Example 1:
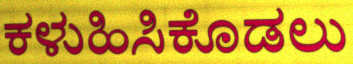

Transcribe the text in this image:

ಕಳುಹಿಸಿಕೊಡಲು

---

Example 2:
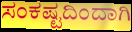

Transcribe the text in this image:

ಸಂಕಷ್ಟದಿಂದಾಗಿ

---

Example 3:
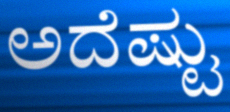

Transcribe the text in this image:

ಅದೆಷ್ಟು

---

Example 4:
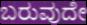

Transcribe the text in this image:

ಬರುವುದೇ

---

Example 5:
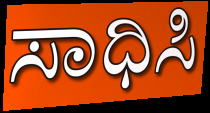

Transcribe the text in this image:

ಸಾಧಿಸಿ